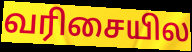
வரிசையில